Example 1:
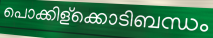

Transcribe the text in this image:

പൊക്കിള്ക്കൊടിബന്ധം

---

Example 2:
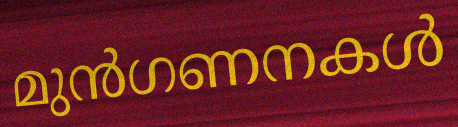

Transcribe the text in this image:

മുൻഗണനകൾ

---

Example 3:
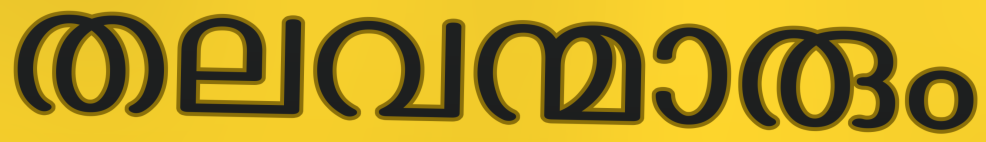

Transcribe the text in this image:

തലവന്മാരും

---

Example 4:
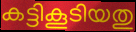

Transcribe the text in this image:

കട്ടികൂടിയതു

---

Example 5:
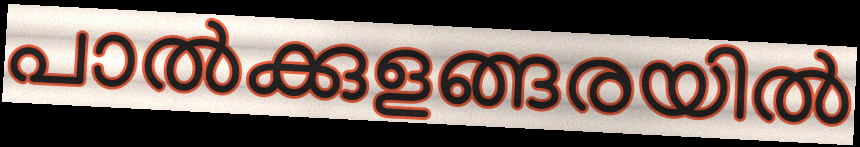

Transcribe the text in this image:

പാൽക്കുളങ്ങരയിൽ